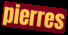
pierres